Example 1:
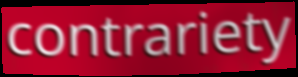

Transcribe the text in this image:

contrariety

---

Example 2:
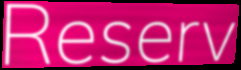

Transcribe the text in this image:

Reserv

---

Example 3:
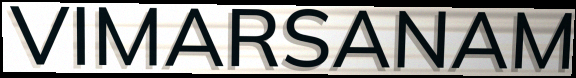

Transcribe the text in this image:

VIMARSANAM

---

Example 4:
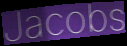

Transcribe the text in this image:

Jacobs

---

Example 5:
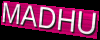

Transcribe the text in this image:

MADHU